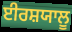
ਈਰਸ਼ਯਾਲੂ